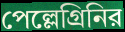
পেল্লেগ্রিনির